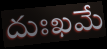
దుఃఖమే